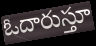
ఓదారుస్తూ